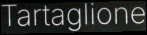
Tartaglione